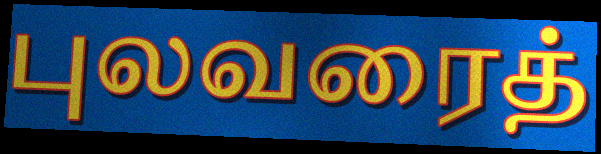
புலவரைத்